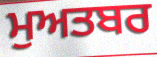
ਮੁਅਤਬਰ